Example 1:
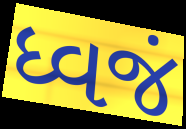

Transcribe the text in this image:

ધ્વજં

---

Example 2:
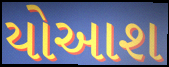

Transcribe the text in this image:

યોઆશ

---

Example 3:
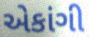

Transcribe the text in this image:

એકાંગી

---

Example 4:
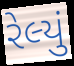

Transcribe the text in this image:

રેલ્યું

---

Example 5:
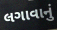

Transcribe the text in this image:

લગાવાનું